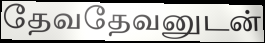
தேவதேவனுடன்